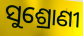
ସୁଶ୍ରୋଣୀ